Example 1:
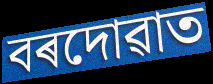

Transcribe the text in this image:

বৰদোৱাত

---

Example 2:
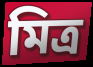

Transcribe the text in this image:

মিত্ৰ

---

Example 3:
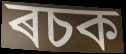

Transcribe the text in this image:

ৰচক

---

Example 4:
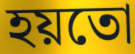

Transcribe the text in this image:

হয়তো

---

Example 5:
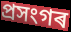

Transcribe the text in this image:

প্ৰসংগৰ